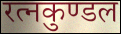
रत्नकुण्डल